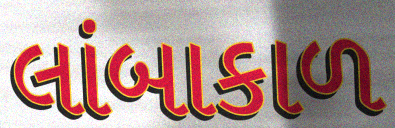
લાંબાકાળ